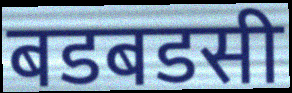
बडबडसी